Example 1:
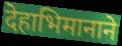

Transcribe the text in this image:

देहाभिमानाने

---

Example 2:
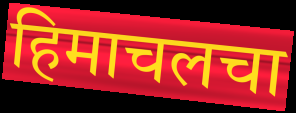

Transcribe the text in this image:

हिमाचलचा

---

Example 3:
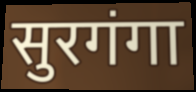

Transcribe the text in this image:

सुरगंगा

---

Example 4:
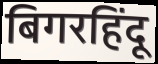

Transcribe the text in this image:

बिगरहिंदू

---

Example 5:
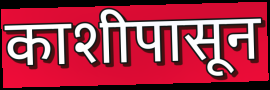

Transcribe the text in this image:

काशीपासून